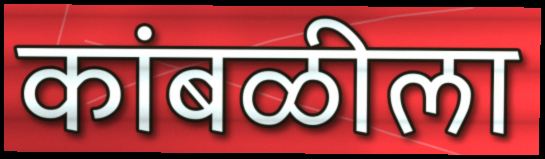
कांबळीला